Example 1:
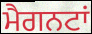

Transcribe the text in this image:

ਮੈਗਨਟਾਂ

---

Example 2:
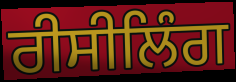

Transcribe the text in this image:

ਰੀਸੀਲਿੰਗ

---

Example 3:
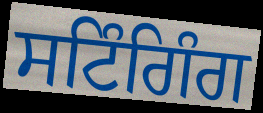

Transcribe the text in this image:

ਸਟਿੰਗਿੰਗ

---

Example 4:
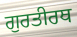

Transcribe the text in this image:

ਗੁਰਤੀਰਥ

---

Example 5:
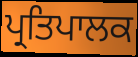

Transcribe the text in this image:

ਪ੍ਰਤਿਪਾਲਕ